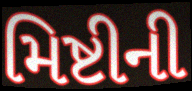
મિષ્ટીની